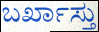
ಬರ್ಖಾಸ್ತು